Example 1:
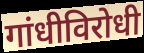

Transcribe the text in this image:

गांधीविरोधी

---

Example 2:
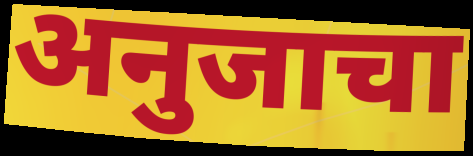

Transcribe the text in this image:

अनुजाचा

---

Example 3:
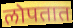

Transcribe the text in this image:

लोपतात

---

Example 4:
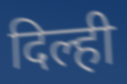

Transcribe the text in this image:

दिल्ही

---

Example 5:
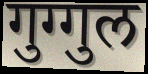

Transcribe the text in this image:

गुग्गुल